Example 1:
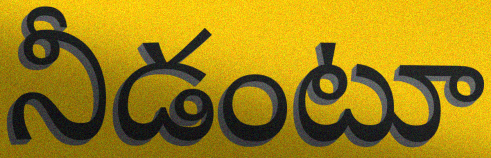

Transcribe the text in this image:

నీడంటూ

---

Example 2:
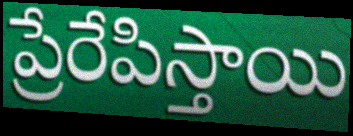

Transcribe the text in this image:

ప్రేరేపిస్తాయి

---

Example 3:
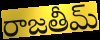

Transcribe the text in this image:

రాజతీమ్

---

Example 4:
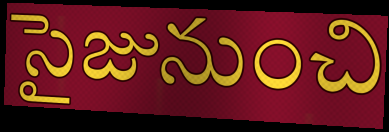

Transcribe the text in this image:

సైజునుంచి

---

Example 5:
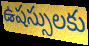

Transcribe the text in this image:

ఉషస్సులకు